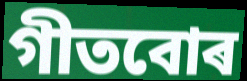
গীতবোৰ